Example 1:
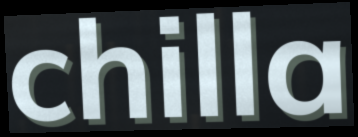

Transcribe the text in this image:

chilla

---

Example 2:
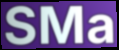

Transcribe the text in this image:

SMa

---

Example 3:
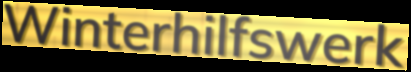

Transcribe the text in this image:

Winterhilfswerk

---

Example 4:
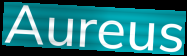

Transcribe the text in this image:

Aureus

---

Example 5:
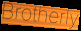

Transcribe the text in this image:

Brotherly